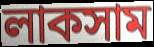
লাকসাম